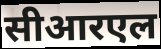
सीआरएल